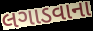
લગાડવાના